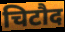
चिटौद